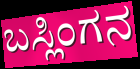
ಬಸ್ಲಿಂಗನ